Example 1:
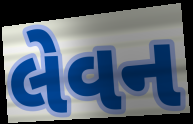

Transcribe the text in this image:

લેવન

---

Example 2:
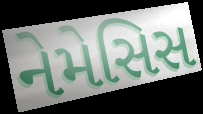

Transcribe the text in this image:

નેમેસિસ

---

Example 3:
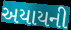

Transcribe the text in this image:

અયાયની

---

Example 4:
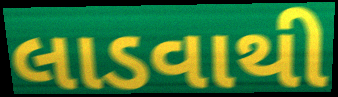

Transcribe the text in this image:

લાડવાથી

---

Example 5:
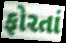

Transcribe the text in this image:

ફોરતાં